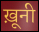
ख़ूनी